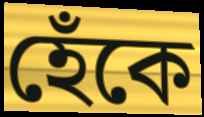
হেঁকে